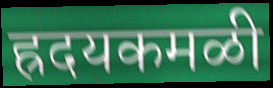
ह्रदयकमळी